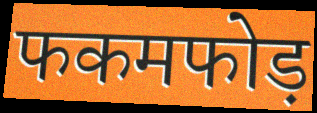
फकमफोड़